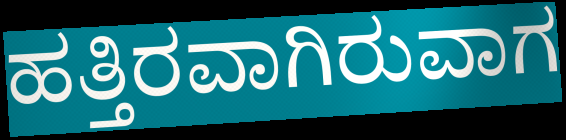
ಹತ್ತಿರವಾಗಿರುವಾಗ